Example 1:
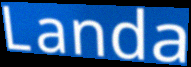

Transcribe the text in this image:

Landa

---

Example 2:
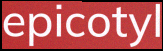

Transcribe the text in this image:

epicotyl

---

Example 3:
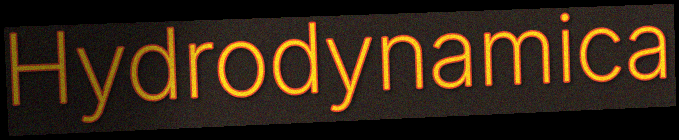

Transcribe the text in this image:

Hydrodynamica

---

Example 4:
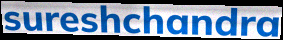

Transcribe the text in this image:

sureshchandra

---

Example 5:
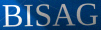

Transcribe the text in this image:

BISAG